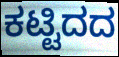
ಕಟ್ಟಿದದ